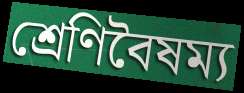
শ্রেণিবৈষম্য